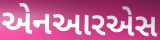
એનઆરએસ